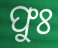
ଫୁଃ